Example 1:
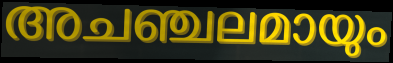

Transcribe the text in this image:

അചഞ്ചലമായും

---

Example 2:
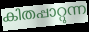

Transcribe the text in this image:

കിതപ്പാറ്റുന്ന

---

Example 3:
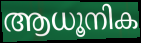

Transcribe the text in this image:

ആധൂനിക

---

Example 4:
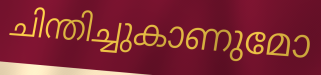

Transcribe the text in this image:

ചിന്തിച്ചുകാണുമോ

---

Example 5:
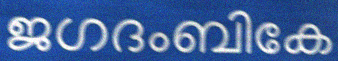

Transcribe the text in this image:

ജഗദംബികേ